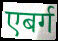
एबर्ग